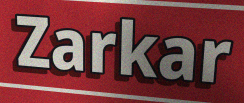
Zarkar